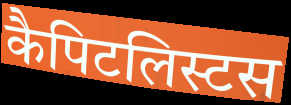
कैपिटलिस्टस